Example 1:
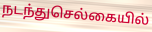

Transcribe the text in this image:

நடந்துசெல்கையில்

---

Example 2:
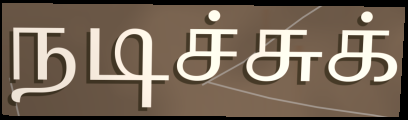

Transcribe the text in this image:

நடிச்சுக்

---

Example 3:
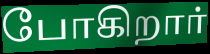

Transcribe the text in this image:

போகிறார்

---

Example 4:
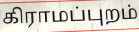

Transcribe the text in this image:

கிராமப்புறம்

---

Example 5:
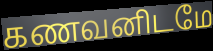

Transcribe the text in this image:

கணவனிடமே